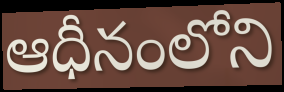
ఆధీనంలోని